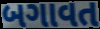
બગાવત